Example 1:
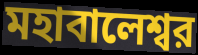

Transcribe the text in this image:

মহাবালেশ্বর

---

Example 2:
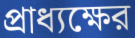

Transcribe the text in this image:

প্রাধ্যক্ষের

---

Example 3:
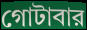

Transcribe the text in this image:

গোটাবার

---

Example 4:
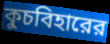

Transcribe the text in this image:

কুচবিহারের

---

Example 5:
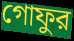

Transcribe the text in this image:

গোফুর